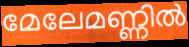
മേലേമണ്ണിൽ